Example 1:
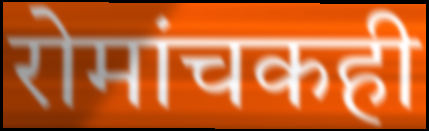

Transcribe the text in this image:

रोमांचकही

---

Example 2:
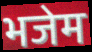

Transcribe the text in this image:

भजेम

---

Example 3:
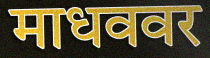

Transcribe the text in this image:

माधववर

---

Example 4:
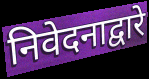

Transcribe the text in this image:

निवेदनाद्वारे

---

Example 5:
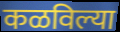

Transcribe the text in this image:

कळविल्या